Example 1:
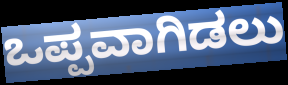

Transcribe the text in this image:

ಒಪ್ಪವಾಗಿಡಲು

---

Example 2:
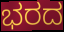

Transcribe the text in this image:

ಭರದ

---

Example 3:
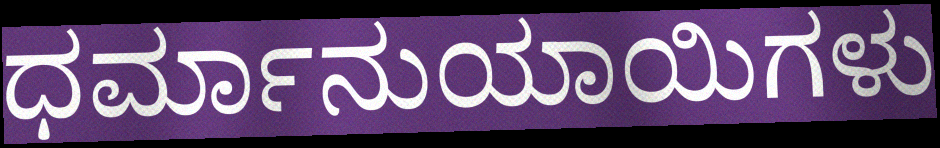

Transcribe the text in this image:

ಧರ್ಮಾನುಯಾಯಿಗಳು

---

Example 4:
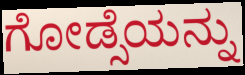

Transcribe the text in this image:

ಗೋಡ್ಸೆಯನ್ನು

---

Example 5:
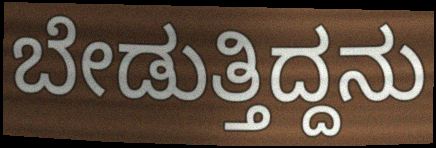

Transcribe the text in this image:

ಬೇಡುತ್ತಿದ್ದನು